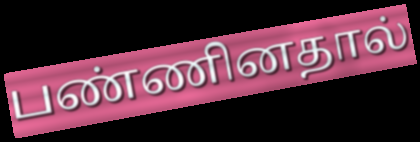
பண்ணினதால்